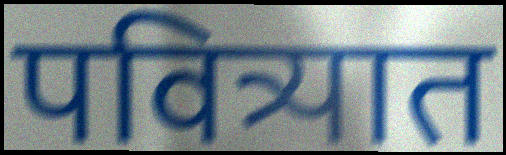
पवित्र्यात